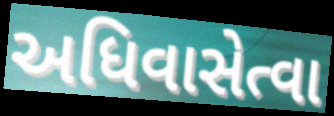
અધિવાસેત્વા